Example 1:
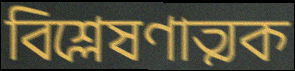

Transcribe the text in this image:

বিশ্লেষণাত্মক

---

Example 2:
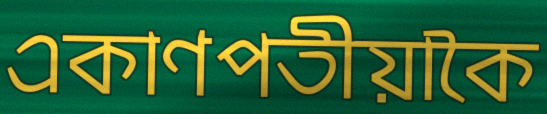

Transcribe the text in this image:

একাণপতীয়াকৈ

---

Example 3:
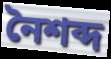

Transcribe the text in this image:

নৈশব্দ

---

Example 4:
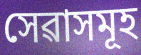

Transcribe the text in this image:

সেৱাসমূহ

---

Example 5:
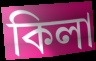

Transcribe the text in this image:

কিলা